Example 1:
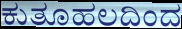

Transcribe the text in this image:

ಕುತೂಹಲದಿಂದ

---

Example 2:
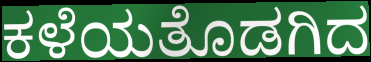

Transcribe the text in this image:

ಕಳೆಯತೊಡಗಿದ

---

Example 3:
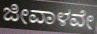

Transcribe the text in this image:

ಜೀವಾಳವೇ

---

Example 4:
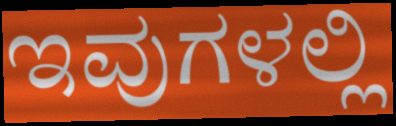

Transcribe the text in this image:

ಇವುಗಳಲ್ಲಿ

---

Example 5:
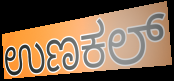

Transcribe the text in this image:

ಉಣಕಲ್